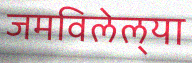
जमविलेल्या